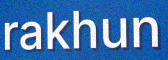
rakhun